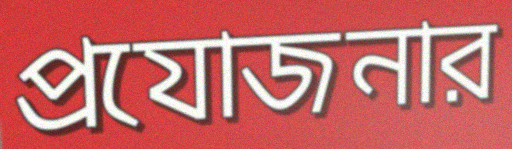
প্রযোজনার